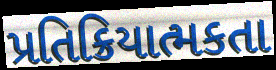
પ્રતિક્રિયાત્મકતા